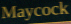
Maycock